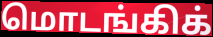
மொடங்கிக்